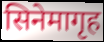
सिनेमागृह